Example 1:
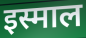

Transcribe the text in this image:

इस्माल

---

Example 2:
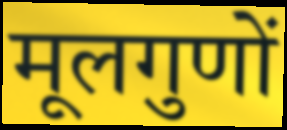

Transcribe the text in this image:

मूलगुणों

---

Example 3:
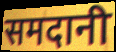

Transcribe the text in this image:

समदानी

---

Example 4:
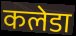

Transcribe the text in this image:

कलेडा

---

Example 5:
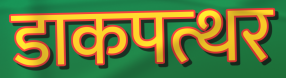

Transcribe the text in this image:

डाकपत्थर